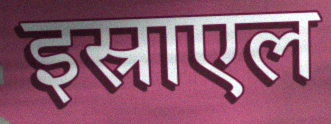
इस्राएल